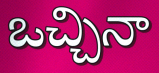
ఒచ్చినా